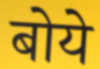
बोये